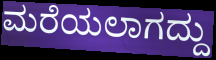
ಮರೆಯಲಾಗದ್ದು